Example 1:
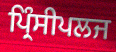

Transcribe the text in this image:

ਪ੍ਰਿੰਸੀਪਲਜ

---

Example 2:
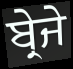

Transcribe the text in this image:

ਬ੍ਰੇਜੇ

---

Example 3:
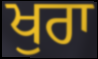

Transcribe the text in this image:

ਖੁਰਾ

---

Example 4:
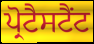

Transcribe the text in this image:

ਪ੍ਰੋਟੈਸਟੈਂਟ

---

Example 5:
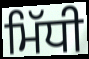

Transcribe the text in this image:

ਮਿੱਧੀ